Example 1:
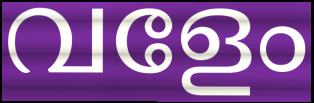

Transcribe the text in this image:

വളേം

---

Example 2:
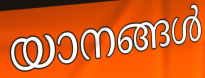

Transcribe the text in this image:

യാനങ്ങൾ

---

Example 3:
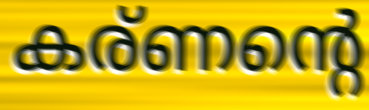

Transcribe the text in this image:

കര്ണന്റെ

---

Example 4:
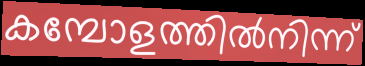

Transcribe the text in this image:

കമ്പോളത്തിൽനിന്ന്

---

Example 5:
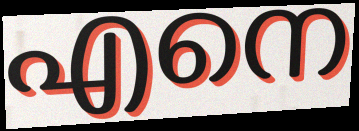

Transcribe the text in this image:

എനെ